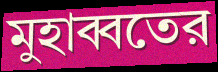
মুহাব্বতের